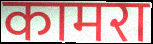
कामरा